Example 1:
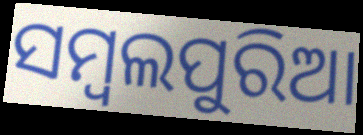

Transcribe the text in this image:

ସମ୍ବଲପୁରିଆ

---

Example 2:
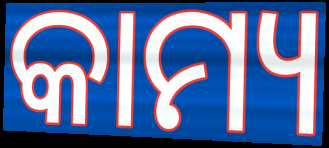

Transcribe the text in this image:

କାମ୍ୟ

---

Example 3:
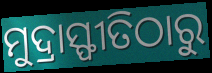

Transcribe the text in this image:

ମୁଦ୍ରାସ୍ଫୀତିଠାରୁ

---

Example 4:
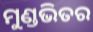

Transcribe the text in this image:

ମୁଣ୍ଡଭିତର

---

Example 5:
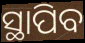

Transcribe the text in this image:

ସ୍ଥାପିବ